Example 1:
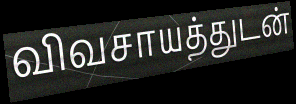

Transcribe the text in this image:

விவசாயத்துடன்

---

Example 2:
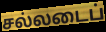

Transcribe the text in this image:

சல்லடைப்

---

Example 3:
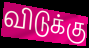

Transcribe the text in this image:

விடுக்கு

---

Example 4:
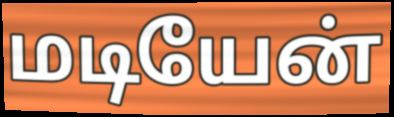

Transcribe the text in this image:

மடியேன்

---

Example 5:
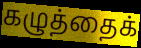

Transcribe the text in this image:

கழுத்தைக்